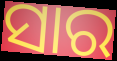
ସାର